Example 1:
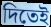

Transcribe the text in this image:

দিতেই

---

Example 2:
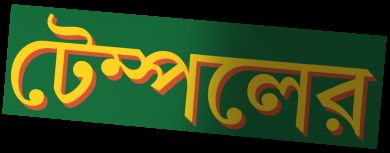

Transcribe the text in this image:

টেম্পলের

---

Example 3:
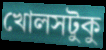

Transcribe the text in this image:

খোলসটুকু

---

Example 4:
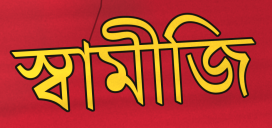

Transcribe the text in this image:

স্বামীজি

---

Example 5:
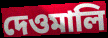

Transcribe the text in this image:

দেওমালি